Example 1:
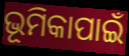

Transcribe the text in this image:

ଭୂମିକାପାଇଁ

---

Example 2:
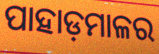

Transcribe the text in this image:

ପାହାଡ଼ମାଳର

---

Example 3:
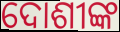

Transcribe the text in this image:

ଦୋଶୀଙ୍କ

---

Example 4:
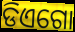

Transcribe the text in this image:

ଡିଏଗୋ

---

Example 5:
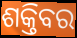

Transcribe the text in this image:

ଶକ୍ତିବର